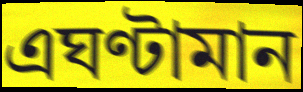
এঘণ্টামান